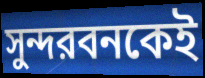
সুন্দরবনকেই